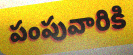
పంపువారికి